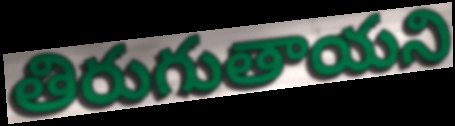
తిరుగుతాయని